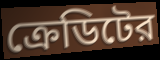
ক্রেডিটের